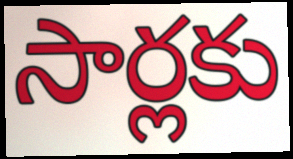
సార్లకు